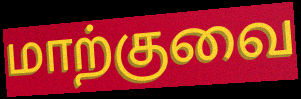
மாற்குவை